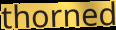
thorned